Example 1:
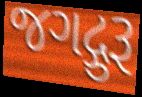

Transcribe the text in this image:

જગદ્ગુરૂ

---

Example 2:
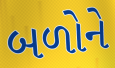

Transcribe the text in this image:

બળોને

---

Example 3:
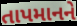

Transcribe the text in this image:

તાપમાનને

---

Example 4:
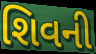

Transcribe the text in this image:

શિવની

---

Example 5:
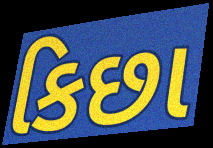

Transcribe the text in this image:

કિછા